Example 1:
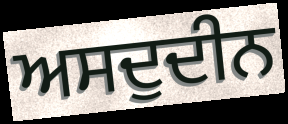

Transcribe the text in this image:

ਅਸਦੁਦੀਨ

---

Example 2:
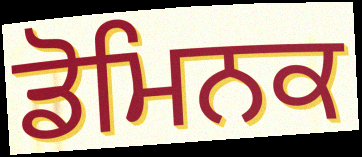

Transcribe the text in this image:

ਡੋਮਿਨਕ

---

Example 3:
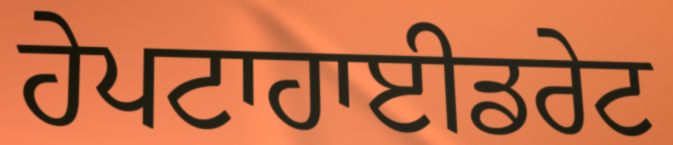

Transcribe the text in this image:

ਹੇਪਟਾਹਾਈਡਰੇਟ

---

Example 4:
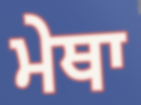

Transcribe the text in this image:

ਮੇਥਾ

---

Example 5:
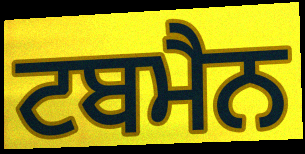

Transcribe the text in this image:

ਟਬਮੈਨ